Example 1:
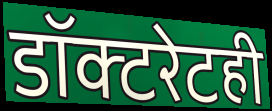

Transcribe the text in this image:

डॉक्‍टरेटही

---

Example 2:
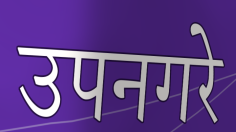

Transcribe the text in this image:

उपनगरे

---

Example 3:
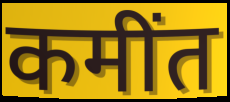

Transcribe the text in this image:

कमींत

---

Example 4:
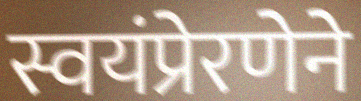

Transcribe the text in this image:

स्वयंप्रेरणेने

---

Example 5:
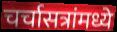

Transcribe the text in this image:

चर्चासत्रांमध्ये